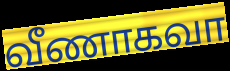
வீணாகவா